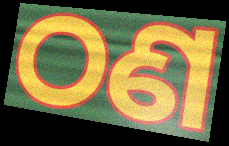
ଠଣ